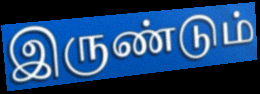
இருண்டும்